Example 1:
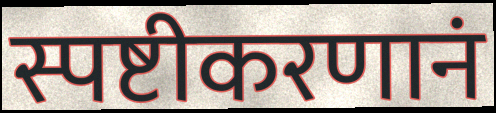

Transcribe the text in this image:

स्पष्टीकरणानं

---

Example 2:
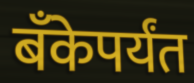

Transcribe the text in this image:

बॅंकेपर्यंत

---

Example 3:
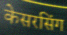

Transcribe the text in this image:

केसरसिंग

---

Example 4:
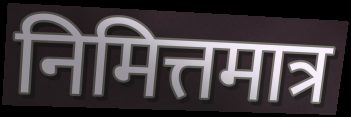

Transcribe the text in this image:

निमित्तमात्र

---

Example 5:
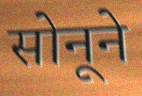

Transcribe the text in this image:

सोनूने